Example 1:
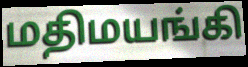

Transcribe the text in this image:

மதிமயங்கி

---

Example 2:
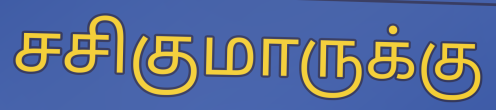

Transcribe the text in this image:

சசிகுமாருக்கு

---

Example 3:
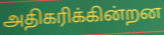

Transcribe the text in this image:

அதிகரிக்கின்றன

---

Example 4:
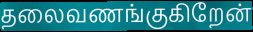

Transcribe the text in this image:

தலைவணங்குகிறேன்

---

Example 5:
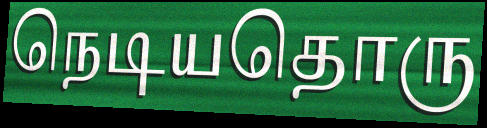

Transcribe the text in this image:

நெடியதொரு